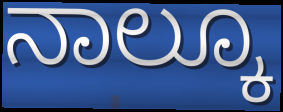
ನಾಲ್ಕೂ